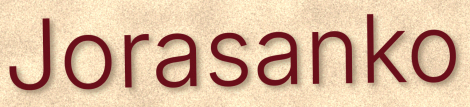
Jorasanko